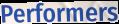
Performers